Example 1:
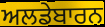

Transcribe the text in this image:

ਅਲਡੇਬਾਰਨ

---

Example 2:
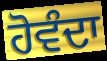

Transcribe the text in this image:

ਹੋਵੰਦਾ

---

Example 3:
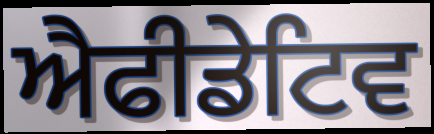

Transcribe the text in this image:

ਐਫੀਡੇਟਿਵ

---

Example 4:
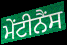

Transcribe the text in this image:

ਮੇਂਟੀਨੈਂਸ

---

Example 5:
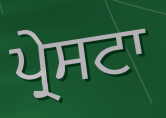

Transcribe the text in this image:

ਪ੍ਰੇਸਟਾ